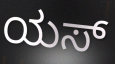
ಯಸ್